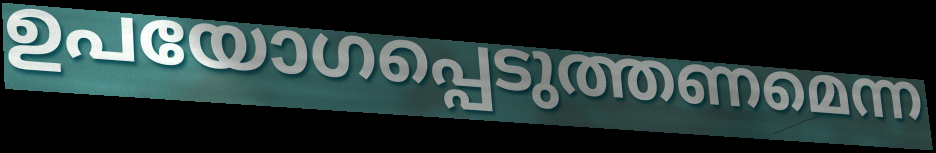
ഉപയോഗപ്പെടുത്തണമെന്ന